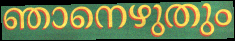
ഞാനെഴുതും